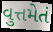
વુત્તમેતં